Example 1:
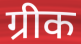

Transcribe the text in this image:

ग्रीक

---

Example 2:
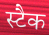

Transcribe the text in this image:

स्टैक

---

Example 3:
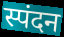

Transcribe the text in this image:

स्पंदन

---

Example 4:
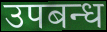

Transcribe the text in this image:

उपबन्ध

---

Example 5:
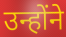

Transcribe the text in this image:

उन्होंने